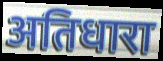
अतिधारा